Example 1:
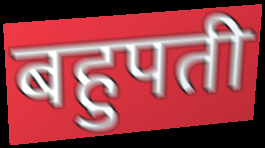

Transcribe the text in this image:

बहुपती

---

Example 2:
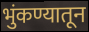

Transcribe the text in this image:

भुंकण्यातून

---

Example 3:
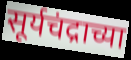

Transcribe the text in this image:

सूर्यचंद्राच्या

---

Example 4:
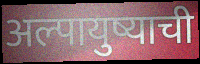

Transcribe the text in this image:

अल्पायुष्याची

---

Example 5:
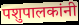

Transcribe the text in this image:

पशुपालकांनी